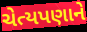
ચેત્યપણાને